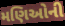
મણિઓની